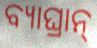
ବ୍ୟାଘ୍ରାନ୍